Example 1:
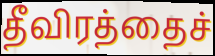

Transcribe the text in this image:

தீவிரத்தைச்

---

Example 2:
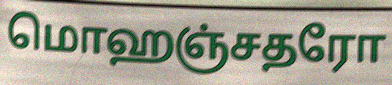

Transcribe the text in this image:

மொஹஞ்சதரோ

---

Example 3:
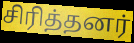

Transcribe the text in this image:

சிரித்தனர்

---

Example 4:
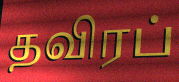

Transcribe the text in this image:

தவிரப்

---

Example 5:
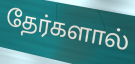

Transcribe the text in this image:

தேர்களால்